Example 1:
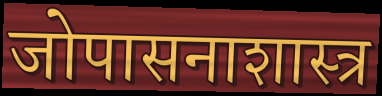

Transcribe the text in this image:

जोपासनाशास्त्र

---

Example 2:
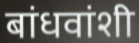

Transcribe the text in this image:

बांधवांशी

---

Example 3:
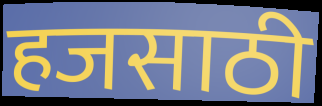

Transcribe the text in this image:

हजसाठी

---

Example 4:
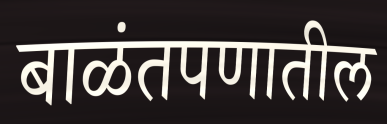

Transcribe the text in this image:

बाळंतपणातील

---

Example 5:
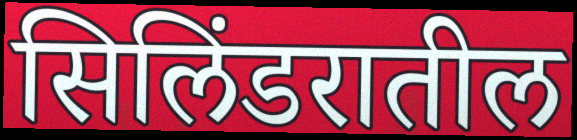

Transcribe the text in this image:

सिलिंडरातील